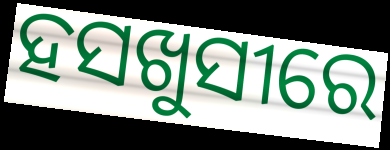
ହସଖୁସୀରେ